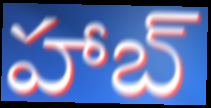
హాబ్